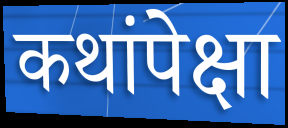
कथांपेक्षा